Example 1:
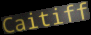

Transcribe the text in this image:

Caitiff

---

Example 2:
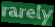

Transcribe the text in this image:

rarely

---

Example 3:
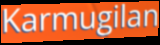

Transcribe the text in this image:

Karmugilan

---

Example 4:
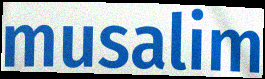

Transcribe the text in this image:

musalim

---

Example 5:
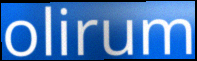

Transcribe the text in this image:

olirum